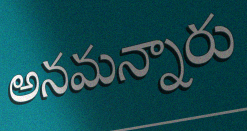
అనమన్నారు